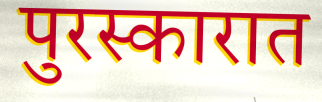
पुरस्कारात